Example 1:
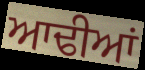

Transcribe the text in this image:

ਆਢੀਆਂ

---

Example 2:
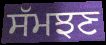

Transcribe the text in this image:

ਸੱਮਝਣ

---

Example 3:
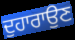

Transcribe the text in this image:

ਦੁਹਾਰਾਉਣ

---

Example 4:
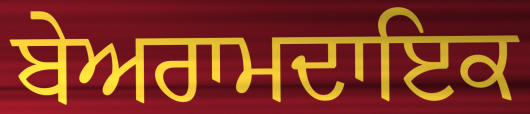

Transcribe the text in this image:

ਬੇਅਰਾਮਦਾਇਕ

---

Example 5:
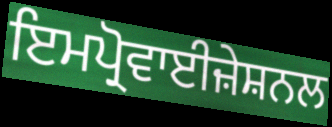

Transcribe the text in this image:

ਇਮਪ੍ਰੋਵਾਈਜ਼ੇਸ਼ਨਲ